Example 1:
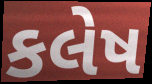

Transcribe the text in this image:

કલેષ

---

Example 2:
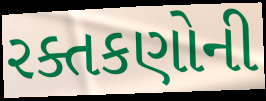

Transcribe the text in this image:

રક્તકણોની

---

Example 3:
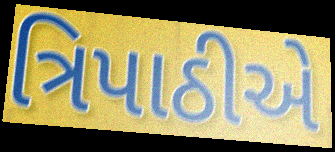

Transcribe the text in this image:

ત્રિપાઠીએ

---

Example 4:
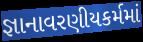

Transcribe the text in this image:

જ્ઞાનાવરણીયકર્મમાં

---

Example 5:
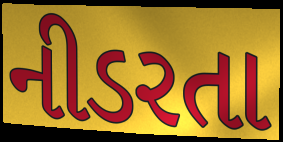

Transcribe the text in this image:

નીડરતા